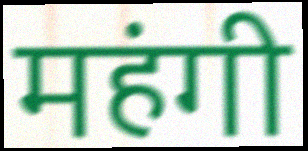
महंगी